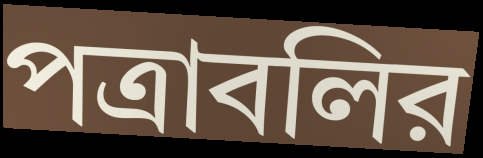
পত্রাবলির